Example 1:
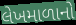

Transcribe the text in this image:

લેખમાળાનો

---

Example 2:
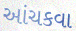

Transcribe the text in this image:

આંચકવા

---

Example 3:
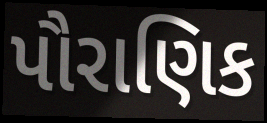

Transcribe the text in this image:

પૌરાણિક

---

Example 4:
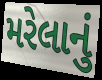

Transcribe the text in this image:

મરેલાનું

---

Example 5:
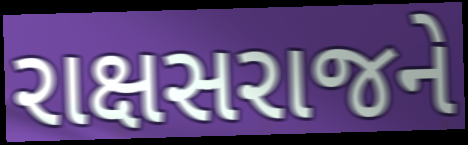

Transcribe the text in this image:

રાક્ષસરાજને